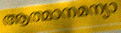
ആത്മാനമന്യാ